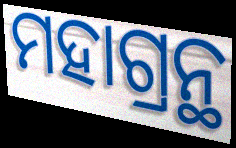
ମହାଗ୍ରନ୍ଥ